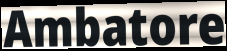
Ambatore